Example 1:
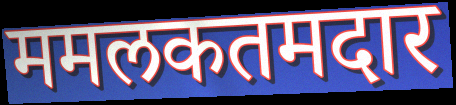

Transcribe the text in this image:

ममलकतमदार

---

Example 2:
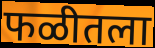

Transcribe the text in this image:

फळीतला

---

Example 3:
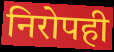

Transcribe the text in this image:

निरोपही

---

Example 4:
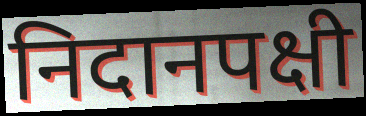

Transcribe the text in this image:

निदानपक्षी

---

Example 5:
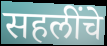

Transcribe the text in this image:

सहलींचे